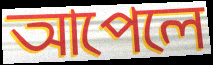
আপেলে